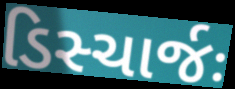
ડિસ્ચાર્જઃ